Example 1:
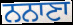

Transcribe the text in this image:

ਨਨਾਣਾ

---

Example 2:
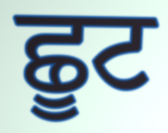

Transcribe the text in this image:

ਛੂਟ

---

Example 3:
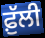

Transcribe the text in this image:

ਫ਼ੁੱਲੀ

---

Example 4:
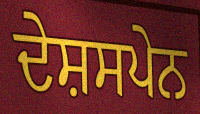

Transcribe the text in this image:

ਦੇਸ਼ਸਪੇਨ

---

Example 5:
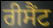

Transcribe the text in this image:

ਰੀਸੈਂਟ